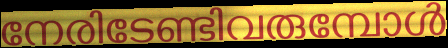
നേരിടേണ്ടിവരുമ്പോൾ